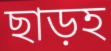
ছাড়হ